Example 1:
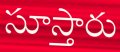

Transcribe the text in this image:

సూస్తారు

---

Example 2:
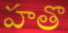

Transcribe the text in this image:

హతొ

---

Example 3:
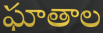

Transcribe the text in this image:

ఘాతాల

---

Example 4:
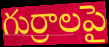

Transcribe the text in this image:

గుర్రాలపై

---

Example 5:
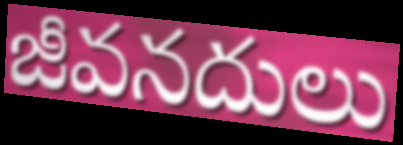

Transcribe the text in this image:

జీవనదులు